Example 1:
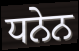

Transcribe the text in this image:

ਧਨੇਨ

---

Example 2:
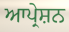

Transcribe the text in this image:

ਆਪ੍ਰੇਸ਼ਨ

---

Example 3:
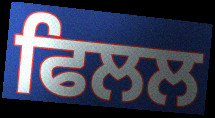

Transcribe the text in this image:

ਫਿਲਲ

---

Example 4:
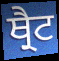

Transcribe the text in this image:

ਥ੍ਰੈਟ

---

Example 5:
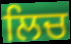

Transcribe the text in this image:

ਲਿਚ